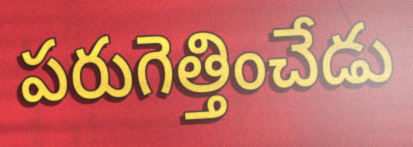
పరుగెత్తించేడు